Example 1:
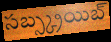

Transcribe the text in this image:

సబ్స్క్రయిబ్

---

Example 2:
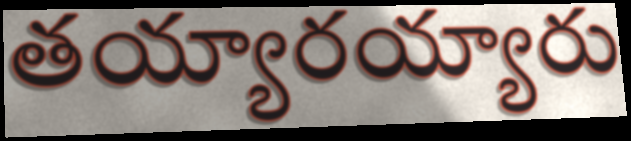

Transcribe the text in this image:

తయ్యారయ్యారు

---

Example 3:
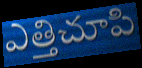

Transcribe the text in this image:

ఎత్తిచూపి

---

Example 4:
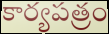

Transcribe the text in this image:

కార్యపత్రం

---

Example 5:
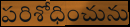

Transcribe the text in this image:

పరిశోధించును